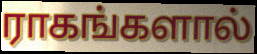
ராகங்களால்